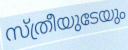
സ്ത്രീയുടേയും